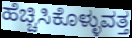
ಹೆಚ್ಚಿಸಿಕೊಳ್ಳುವತ್ತ